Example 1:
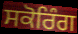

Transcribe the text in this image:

ਸਕੋਰਿੰਗ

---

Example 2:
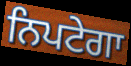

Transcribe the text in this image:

ਨਿਪਟੇਗਾ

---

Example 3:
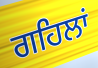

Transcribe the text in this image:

ਗਹਿਲਾਂ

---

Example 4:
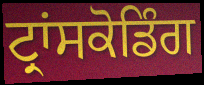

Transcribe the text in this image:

ਟ੍ਰਾਂਸਕੋਡਿੰਗ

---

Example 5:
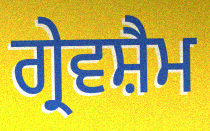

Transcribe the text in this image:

ਗ੍ਰੇਵਸ਼ੈਮ